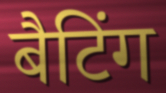
बैटिंग